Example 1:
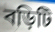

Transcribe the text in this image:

বড়িটি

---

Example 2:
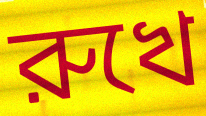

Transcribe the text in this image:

রুখে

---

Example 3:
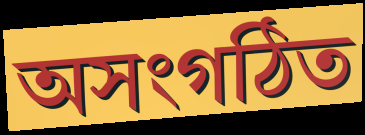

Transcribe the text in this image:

অসংগঠিত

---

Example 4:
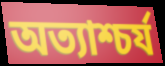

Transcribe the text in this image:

অত্যাশ্চর্য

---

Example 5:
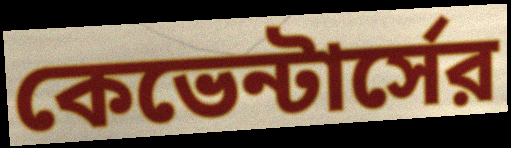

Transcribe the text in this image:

কেভেন্টার্সের